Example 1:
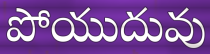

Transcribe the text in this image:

పోయుదువు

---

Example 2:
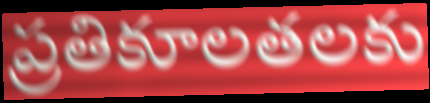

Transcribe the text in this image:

ప్రతికూలతలకు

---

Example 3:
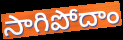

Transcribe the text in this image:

సాగిపోదాం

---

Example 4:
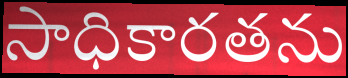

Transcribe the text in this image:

సాధికారతను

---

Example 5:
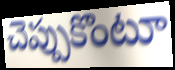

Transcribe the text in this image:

చెప్పుకొంటూ